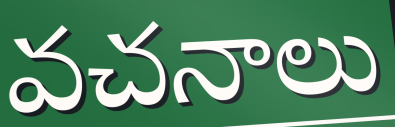
వచనాలు